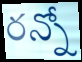
రన్నో